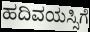
ಹದಿವಯಸ್ಸಿಗೆ